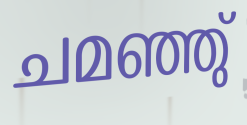
ചമഞ്ഞു്